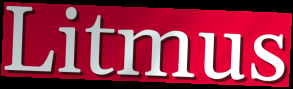
Litmus